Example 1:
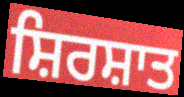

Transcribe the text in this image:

ਸ਼ਿਰਸ਼ਾਤ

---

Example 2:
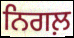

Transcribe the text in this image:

ਨਿਗਲ਼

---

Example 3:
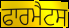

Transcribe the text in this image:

ਫਾਰਮੈਟਸ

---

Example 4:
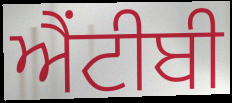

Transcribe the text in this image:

ਐਂਟੀਬੀ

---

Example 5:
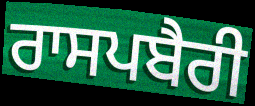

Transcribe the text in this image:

ਰਾਸਪਬੈਰੀ